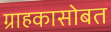
ग्राहकासोबत